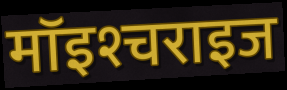
मॉइश्चराइज